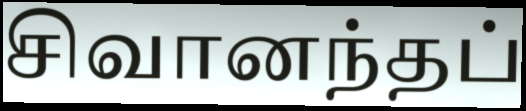
சிவானந்தப்